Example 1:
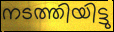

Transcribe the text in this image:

നടത്തിയിട്ടു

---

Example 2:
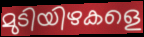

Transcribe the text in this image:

മുടിയിഴകളെ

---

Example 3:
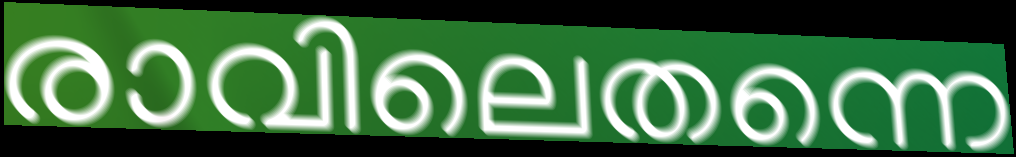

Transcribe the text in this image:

രാവിലെതന്നെ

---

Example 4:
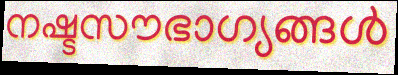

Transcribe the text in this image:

നഷ്ടസൗഭാഗ്യങ്ങൾ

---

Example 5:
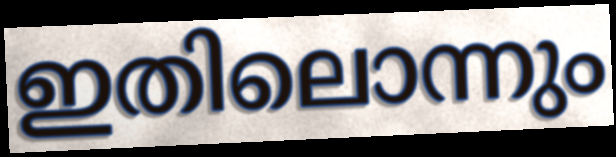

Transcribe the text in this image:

ഇതിലൊന്നും